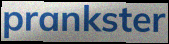
prankster